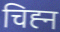
चिह्‍न